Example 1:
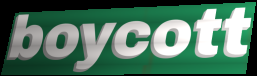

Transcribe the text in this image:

boycott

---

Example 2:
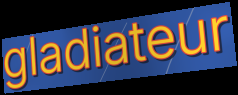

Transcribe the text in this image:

gladiateur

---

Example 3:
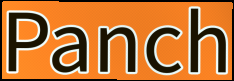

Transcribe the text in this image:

Panch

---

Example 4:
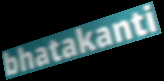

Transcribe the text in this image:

bhatakanti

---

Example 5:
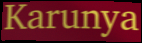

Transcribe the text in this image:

Karunya